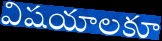
విషయాలకూ